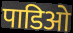
पाडिओ